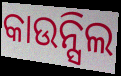
କାଉନ୍ସିଲ